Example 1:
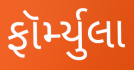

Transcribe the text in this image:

ફૉર્મ્યુલા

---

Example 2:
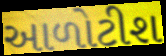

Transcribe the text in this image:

આળોટીશ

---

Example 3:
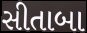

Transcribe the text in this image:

સીતાબા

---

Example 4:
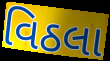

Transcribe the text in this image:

વિઠલા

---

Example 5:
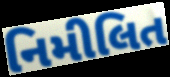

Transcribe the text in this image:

નિમીલિત